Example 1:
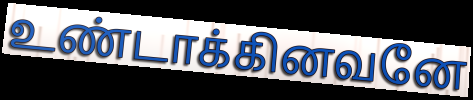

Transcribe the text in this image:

உண்டாக்கினவனே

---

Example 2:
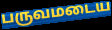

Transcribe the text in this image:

பருவமடைய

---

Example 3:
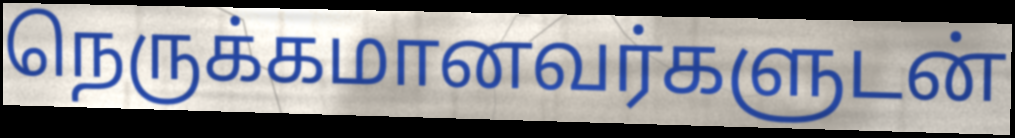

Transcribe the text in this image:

நெருக்கமானவர்களுடன்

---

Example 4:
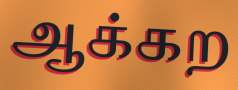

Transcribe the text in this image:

ஆக்கற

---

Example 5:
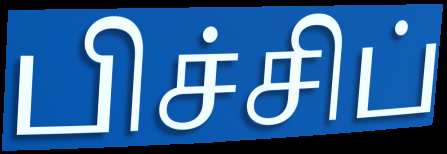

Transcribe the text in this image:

பிச்சிப்